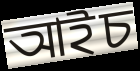
আইচ